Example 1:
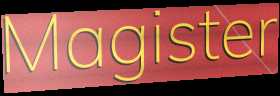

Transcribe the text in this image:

Magister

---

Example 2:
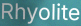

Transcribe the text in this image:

Rhyolite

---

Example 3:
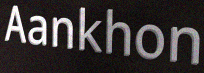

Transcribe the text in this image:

Aankhon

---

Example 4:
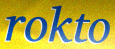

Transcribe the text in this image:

rokto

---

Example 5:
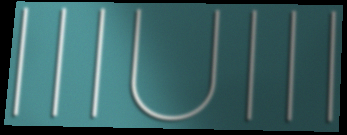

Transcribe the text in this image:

IIIUIII